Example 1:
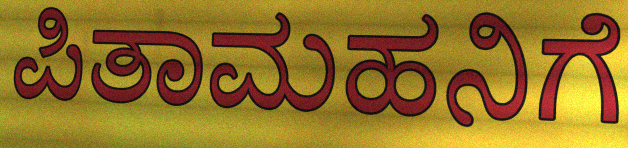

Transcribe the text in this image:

ಪಿತಾಮಹನಿಗೆ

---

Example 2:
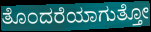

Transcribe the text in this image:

ತೊಂದರೆಯಾಗುತ್ತೋ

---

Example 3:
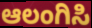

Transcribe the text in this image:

ಆಲಂಗಿಸಿ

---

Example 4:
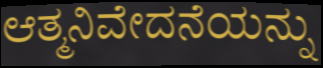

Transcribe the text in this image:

ಆತ್ಮನಿವೇದನೆಯನ್ನು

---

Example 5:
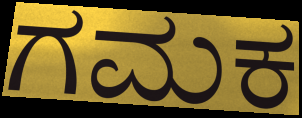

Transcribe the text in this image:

ಗಮಕ